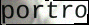
portro